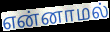
என்னாமல்